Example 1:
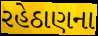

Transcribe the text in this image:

રહેઠાણના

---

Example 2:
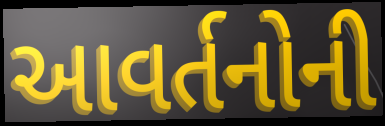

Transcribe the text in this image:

આવર્તનોની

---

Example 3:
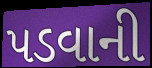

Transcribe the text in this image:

પડવાની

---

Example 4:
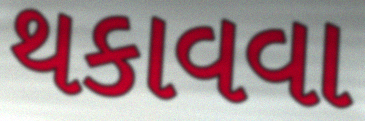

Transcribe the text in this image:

થકાવવા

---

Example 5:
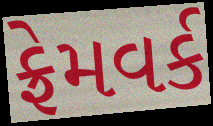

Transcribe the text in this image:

ફ્રેમવર્ક